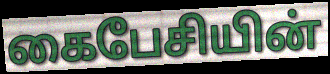
கைபேசியின்